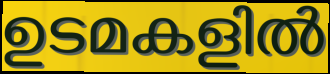
ഉടമകളിൽ